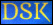
DSK